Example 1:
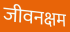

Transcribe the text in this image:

जीवनक्षम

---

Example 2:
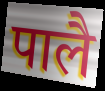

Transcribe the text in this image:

पालै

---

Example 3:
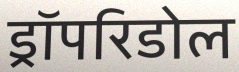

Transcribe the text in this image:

ड्रॉपरिडोल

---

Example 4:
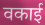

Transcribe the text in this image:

वकाई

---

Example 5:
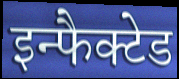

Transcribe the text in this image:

इन्फैक्टेड